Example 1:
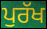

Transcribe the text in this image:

ਪੁਰੱਖ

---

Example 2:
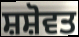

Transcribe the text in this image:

ਸ਼ਸ਼ੋਵਤ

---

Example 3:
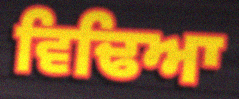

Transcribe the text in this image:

ਵਿਢਿਆ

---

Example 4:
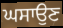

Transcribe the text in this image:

ਘਸਾਉਣ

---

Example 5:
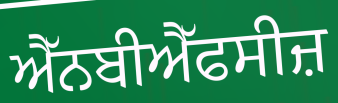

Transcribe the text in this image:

ਐੱਨਬੀਐੱਫਸੀਜ਼